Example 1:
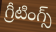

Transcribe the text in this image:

గ్రీటింగ్స్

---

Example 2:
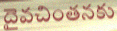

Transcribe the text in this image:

దైవచింతనకు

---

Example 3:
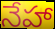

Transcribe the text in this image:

నేహా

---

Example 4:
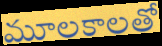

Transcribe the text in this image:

మూలకాలతో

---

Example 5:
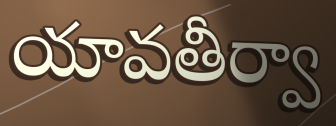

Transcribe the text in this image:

యావతీర్వా